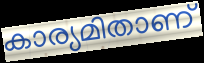
കാര്യമിതാണ്